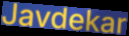
Javdekar